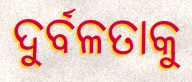
ଦୁର୍ବଳତାକୁ